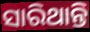
ସାରିଥାନ୍ତି